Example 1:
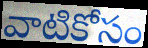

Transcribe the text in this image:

వాటికోసం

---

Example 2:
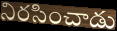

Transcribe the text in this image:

నిరసించాడు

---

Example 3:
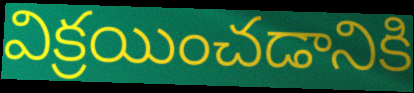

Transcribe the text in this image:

విక్రయించడానికి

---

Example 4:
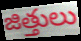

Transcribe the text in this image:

జిత్తులు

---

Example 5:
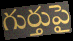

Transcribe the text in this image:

గుర్తుపై